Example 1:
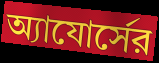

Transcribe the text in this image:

অ্যাযোর্সের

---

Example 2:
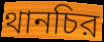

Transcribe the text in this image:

থানচির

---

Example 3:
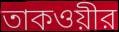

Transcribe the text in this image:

তাকওয়ীর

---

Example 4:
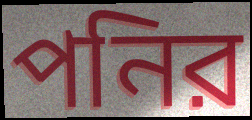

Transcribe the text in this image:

পনির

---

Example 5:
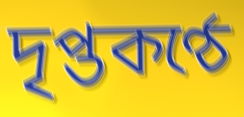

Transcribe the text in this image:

দৃপ্তকণ্ঠে